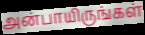
அன்பாயிருங்கள்